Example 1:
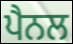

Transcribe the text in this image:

ਪੈਨਲ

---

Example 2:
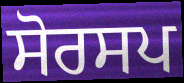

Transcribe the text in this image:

ਸੋਰਸਪ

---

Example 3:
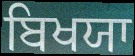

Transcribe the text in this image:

ਬਿਖਯਾ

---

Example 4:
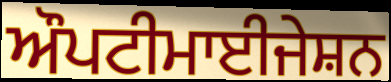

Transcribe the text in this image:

ਔਪਟੀਮਾਈਜੇਸ਼ਨ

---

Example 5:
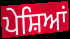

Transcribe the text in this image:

ਪੇਸ਼ਿਆਂ